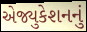
એજ્યુકેશનનું